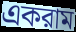
একরাম